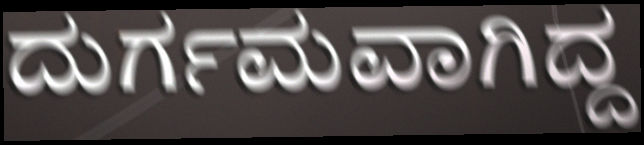
ದುರ್ಗಮವಾಗಿದ್ದ